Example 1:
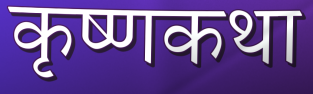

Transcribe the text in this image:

कृष्णकथा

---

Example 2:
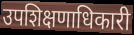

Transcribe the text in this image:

उपशिक्षणाधिकारी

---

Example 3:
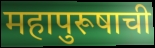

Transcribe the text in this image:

महापुरूषाची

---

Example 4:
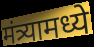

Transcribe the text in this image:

मंत्र्यामध्ये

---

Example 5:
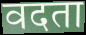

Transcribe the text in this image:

वदता